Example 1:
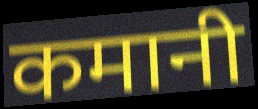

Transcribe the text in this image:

कमानी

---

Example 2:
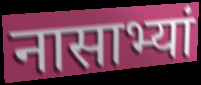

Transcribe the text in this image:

नासाभ्यां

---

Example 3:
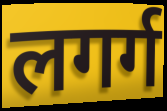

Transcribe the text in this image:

लगर्ग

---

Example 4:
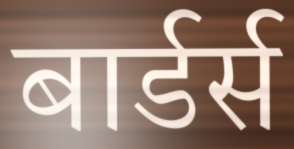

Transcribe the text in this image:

बार्डर्स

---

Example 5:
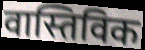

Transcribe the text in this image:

वास्तिविक